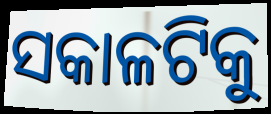
ସକାଳଟିକୁ